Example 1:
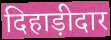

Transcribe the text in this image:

दिहाड़ीदार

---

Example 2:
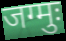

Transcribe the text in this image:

जग्मुः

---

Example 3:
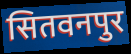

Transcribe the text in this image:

सितवनपुर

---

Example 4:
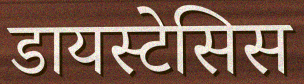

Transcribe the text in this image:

डायस्टेसिस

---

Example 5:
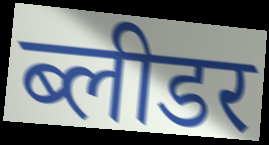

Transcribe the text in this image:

ब्लीडर